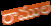
రాముల